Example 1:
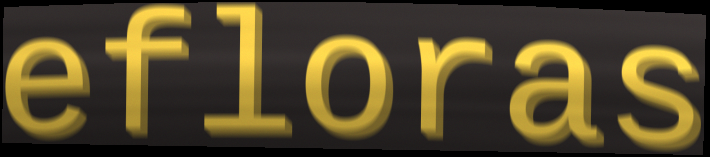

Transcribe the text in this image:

efloras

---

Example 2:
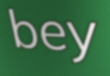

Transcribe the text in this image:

bey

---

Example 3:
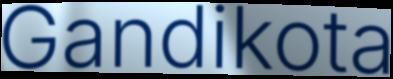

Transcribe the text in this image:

Gandikota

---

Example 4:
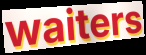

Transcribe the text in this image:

waiters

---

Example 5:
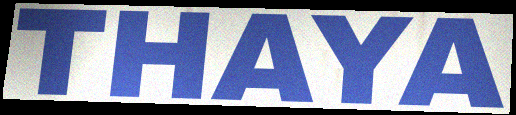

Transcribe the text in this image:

THAYA